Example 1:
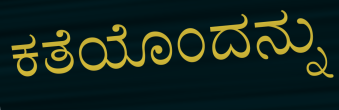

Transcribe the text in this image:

ಕತೆಯೊಂದನ್ನು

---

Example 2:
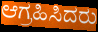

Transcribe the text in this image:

ಆಗ್ರಹಿಸಿದರು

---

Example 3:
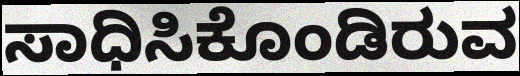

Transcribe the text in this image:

ಸಾಧಿಸಿಕೊಂಡಿರುವ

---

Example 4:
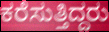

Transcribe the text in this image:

ಕರೆಸುತ್ತಿದ್ದರು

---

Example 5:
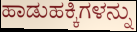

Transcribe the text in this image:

ಹಾಡುಹಕ್ಕಿಗಳನ್ನು